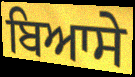
ਬਿਆਸੇ